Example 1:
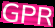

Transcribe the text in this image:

GPR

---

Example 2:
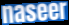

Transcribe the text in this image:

naseer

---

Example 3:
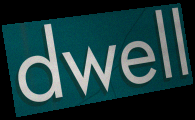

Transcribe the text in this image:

dwell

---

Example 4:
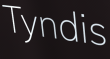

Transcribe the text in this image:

Tyndis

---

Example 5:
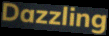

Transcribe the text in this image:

Dazzling